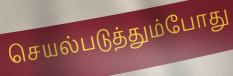
செயல்படுத்தும்போது